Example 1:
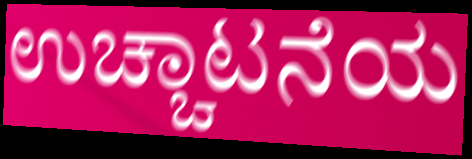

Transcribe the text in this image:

ಉಚ್ಚಾಟನೆಯ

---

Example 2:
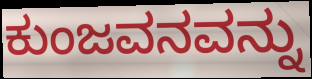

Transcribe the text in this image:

ಕುಂಜವನವನ್ನು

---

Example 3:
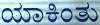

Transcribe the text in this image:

ಯಾಕಿಂತು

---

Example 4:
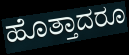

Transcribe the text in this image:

ಹೊತ್ತಾದರೂ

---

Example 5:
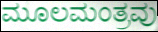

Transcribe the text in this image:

ಮೂಲಮಂತ್ರವು